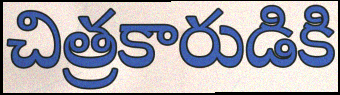
చిత్రకారుడికి